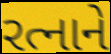
રત્નાને